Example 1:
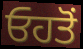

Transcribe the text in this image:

ਓਹਤੋਂ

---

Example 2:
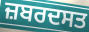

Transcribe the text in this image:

ਜ਼ਬਰਦਸਤ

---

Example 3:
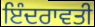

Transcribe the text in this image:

ਇੰਦਰਾਵਤੀ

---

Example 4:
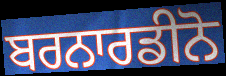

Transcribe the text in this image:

ਬਰਨਾਰਡੀਨੋ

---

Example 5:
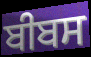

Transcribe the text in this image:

ਬੀਬਸ